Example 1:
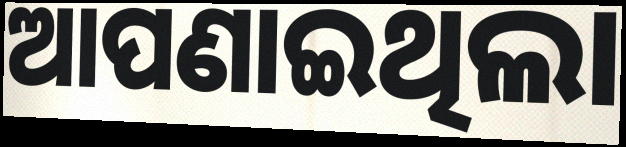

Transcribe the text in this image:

ଆପଣାଇଥିଲା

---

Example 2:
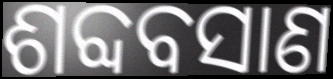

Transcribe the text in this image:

ଶବ୍ଦବସାଣ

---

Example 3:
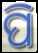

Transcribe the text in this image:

ପି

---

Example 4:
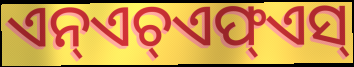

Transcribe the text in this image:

ଏନ୍ଏଚ୍ଏଫ୍ଏସ୍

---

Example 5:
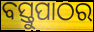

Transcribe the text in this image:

ବସ୍ତୁପାଠର